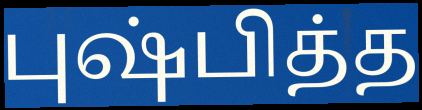
புஷ்பித்த